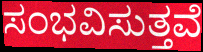
ಸಂಭವಿಸುತ್ತವೆ